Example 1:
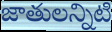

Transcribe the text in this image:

జాతులన్నిటి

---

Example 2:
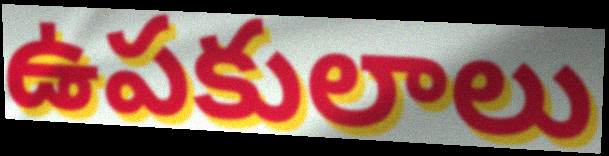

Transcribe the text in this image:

ఉపకులాలు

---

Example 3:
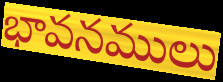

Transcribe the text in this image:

భావనములు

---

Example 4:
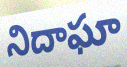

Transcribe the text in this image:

నిదాఘా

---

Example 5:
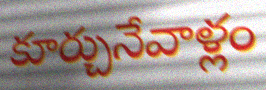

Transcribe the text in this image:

కూర్చునేవాళ్లం